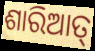
ଶାରିଆତ୍